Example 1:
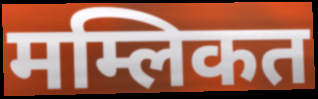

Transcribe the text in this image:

मम्लिकत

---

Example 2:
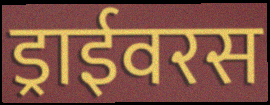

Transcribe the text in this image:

ड्राईवरस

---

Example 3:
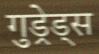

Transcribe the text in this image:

गुड्रेड्स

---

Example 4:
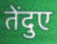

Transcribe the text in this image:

तेंदुए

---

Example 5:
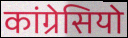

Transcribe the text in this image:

कांग्रेसियो